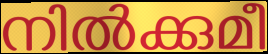
നിൽക്കുമീ